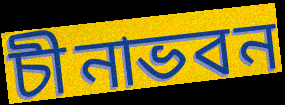
চীনাভবন